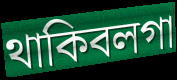
থাকিবলগা